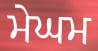
ਮੇਘਮ